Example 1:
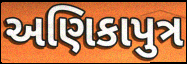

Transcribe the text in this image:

અણિકાપુત્ર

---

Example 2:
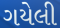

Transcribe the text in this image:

ગયેલી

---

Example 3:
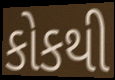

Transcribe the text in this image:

કોકથી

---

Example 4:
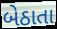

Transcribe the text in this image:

બેઠાતા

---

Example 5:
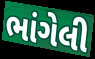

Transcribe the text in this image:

ભાંગેલી